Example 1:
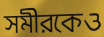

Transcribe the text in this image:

সমীরকেও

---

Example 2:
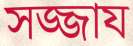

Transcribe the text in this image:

সজ্জায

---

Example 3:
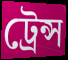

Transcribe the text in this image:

ট্রেন্স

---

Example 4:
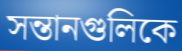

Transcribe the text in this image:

সন্তানগুলিকে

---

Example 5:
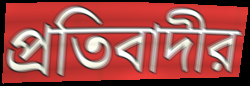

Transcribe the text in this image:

প্রতিবাদীর